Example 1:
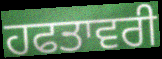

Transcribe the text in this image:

ਹਫਤਾਵਰੀ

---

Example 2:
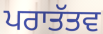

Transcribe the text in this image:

ਪਰਾਤੱਤਵ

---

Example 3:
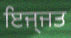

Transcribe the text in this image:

ਇਜ੍ਜਤ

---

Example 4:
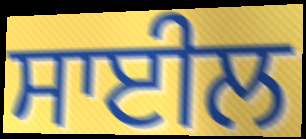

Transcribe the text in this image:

ਸਾਈਲ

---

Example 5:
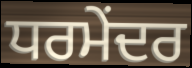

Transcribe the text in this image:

ਧਰਮੇਂਦਰ